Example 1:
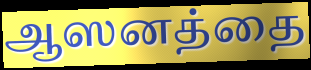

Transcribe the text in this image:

ஆஸனத்தை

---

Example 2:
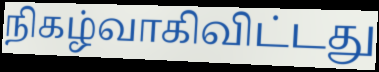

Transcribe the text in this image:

நிகழ்வாகிவிட்டது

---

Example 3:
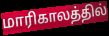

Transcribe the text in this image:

மாரிகாலத்தில்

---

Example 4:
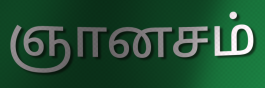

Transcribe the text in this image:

ஞானசம்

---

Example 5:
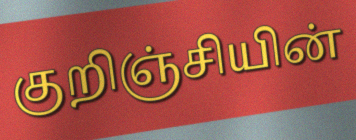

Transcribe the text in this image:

குறிஞ்சியின்